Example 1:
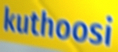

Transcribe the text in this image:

kuthoosi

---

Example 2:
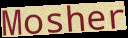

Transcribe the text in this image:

Mosher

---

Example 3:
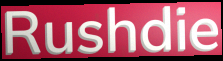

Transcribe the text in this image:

Rushdie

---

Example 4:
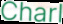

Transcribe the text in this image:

Charl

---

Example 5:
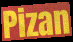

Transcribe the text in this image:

Pizan